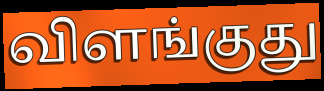
விளங்குது